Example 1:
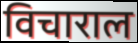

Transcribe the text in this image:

विचाराल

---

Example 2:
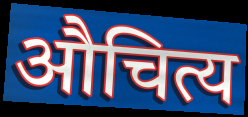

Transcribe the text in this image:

औचित्य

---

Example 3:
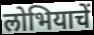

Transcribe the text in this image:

लोभियाचें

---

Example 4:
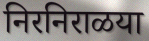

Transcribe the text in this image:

निरनिराळया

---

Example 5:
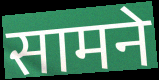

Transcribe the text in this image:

सामने